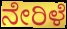
ನೇರಿಳೆ